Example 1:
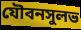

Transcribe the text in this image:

যৌবনসুলভ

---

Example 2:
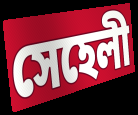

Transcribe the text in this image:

সেহেলী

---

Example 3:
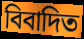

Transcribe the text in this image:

বিবাদিত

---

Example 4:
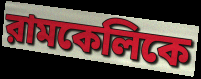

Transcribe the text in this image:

রামকেলিকে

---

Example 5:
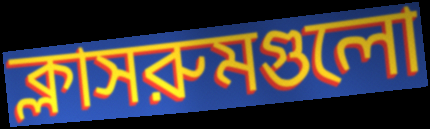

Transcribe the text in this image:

ক্লাসরুমগুলো